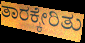
ತಾರಕ್ಕೇರಿತು